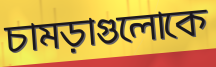
চামড়াগুলোকে